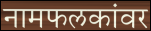
नामफलकांवर